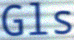
Gls